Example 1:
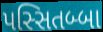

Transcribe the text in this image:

પસ્સિતબ્બા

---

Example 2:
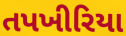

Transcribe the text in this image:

તપખીરિયા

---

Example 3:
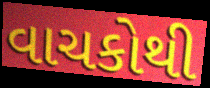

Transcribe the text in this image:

વાચકોથી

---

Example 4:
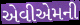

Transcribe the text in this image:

એવીએમની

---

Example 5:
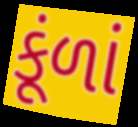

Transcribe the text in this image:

કૂંળાં